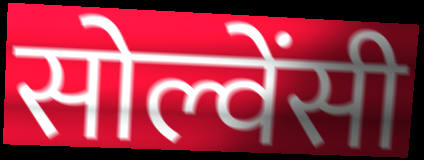
सोल्वेंसी